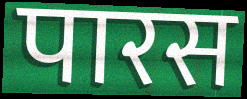
पारस